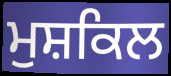
ਮੁਸ਼ਕਿਲ